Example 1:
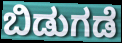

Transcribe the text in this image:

ಬಿಡುಗಡೆ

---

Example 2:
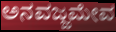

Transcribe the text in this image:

ಅನವಜ್ಜಮೇವ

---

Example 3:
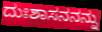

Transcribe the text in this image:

ದುಃಶಾಸನನನ್ನು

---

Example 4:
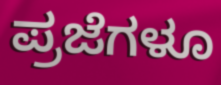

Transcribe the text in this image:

ಪ್ರಜೆಗಳೂ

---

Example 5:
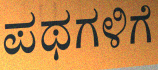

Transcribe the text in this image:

ಪಥಗಳಿಗೆ